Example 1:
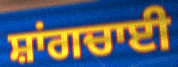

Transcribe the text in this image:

ਸ਼ਾਂਗਚਾਈ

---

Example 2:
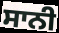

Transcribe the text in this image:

ਸਾਨੀ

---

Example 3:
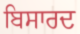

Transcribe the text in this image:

ਬਿਸਾਰਦ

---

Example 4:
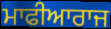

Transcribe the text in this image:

ਮਾਫੀਆਰਾਜ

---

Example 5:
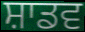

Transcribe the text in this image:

ਸ਼ਾਡਵ